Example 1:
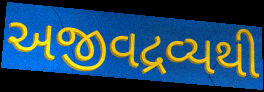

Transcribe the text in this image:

અજીવદ્રવ્યથી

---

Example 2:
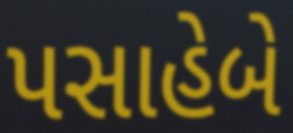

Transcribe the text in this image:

પસાહેબે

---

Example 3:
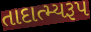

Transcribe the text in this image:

તાદાત્મ્યરૂપ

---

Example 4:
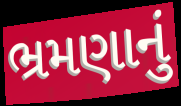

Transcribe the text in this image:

ભ્રમણાનું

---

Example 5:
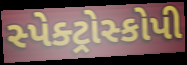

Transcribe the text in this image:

સ્પેક્ટ્રોસ્કોપી